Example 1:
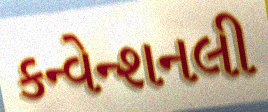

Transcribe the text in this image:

કન્વેન્શનલી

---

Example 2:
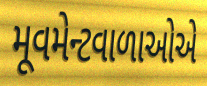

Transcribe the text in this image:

મૂવમેન્ટવાળાઓએ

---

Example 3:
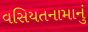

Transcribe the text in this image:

વસિયતનામાનું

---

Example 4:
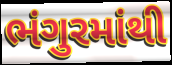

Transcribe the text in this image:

ભંગુરમાંથી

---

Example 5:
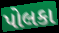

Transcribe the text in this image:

પોલકા